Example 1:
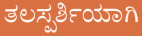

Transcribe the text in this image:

ತಲಸ್ಪರ್ಶಿಯಾಗಿ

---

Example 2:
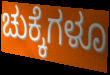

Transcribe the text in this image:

ಚುಕ್ಕೆಗಳೂ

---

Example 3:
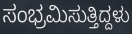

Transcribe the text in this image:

ಸಂಭ್ರಮಿಸುತ್ತಿದ್ದಳು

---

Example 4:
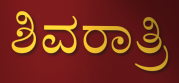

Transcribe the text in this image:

ಶಿವರಾತ್ರಿ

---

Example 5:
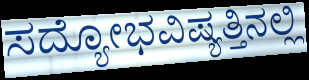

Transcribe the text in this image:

ಸದ್ಯೋಭವಿಷ್ಯತ್ತಿನಲ್ಲಿ